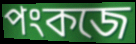
পংকজে